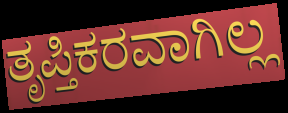
ತೃಪ್ತಿಕರವಾಗಿಲ್ಲ